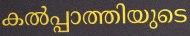
കൽപ്പാത്തിയുടെ